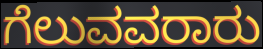
ಗೆಲುವವರಾರು